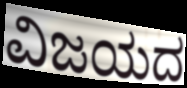
ವಿಜಯದ